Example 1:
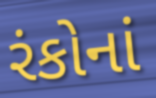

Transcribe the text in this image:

રંકોનાં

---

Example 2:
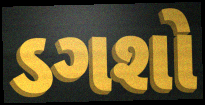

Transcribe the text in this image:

ડગશો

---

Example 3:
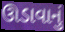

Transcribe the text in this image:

ઊડાવાનું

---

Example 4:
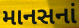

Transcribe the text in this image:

માનસનાં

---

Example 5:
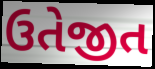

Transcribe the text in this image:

ઉતેજીત